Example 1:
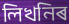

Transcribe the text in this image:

লিখনিৰ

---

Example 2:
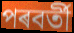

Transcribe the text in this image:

পৰবৰ্তী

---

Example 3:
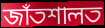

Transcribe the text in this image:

জাঁতশালত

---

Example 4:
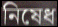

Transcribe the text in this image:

নিষেধ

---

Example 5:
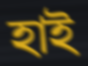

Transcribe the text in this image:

হাই